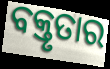
ବକ୍ତୃତାର